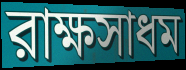
রাক্ষসাধম